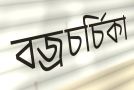
বজ্রচর্চিকা